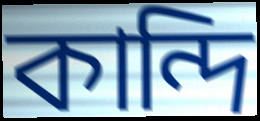
কান্দি